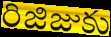
రిజిజుకు